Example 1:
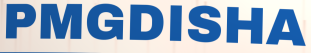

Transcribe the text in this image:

PMGDISHA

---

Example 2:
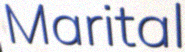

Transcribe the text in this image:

Marital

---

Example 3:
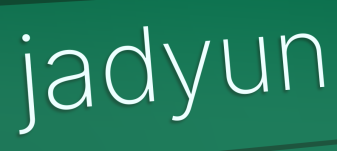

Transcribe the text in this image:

jadyun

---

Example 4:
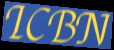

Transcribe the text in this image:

ICBN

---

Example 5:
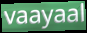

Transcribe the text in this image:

vaayaal